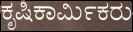
ಕೃಷಿಕಾರ್ಮಿಕರು